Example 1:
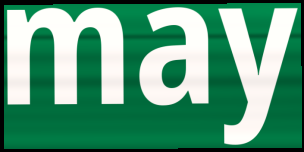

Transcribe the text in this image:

may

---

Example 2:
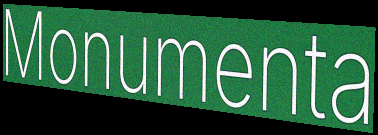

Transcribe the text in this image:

Monumenta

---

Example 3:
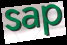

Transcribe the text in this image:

sap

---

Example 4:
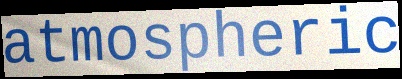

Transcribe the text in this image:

atmospheric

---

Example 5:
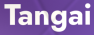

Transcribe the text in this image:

Tangai